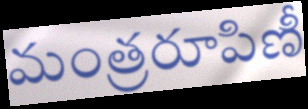
మంత్రరూపిణీ